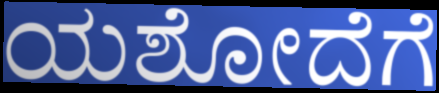
ಯಶೋದೆಗೆ